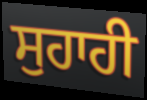
ਸੁਹਾਹੀ